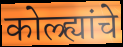
कोल्ह्यांचे